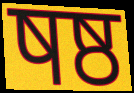
षष्ठ